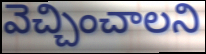
వెచ్చించాలని